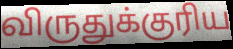
விருதுக்குரிய